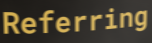
Referring